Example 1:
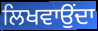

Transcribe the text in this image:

ਲਿਖਵਾਉਂਦਾ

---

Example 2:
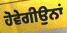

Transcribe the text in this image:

ਹੋਵੇਗੀਉਨਾਂ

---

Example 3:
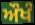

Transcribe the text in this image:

ਔਖੰ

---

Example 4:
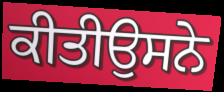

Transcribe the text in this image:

ਕੀਤੀਉਸਨੇ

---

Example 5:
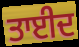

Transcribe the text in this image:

ਤਾਈਦ